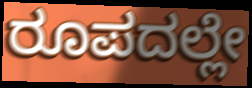
ರೂಪದಲ್ಲೇ